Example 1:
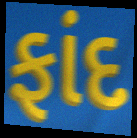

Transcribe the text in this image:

ફાંદ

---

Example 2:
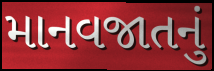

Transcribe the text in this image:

માનવજાતનું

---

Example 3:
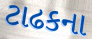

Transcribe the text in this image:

ટાઢકના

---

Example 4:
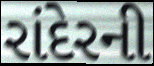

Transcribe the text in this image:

રાંદેરની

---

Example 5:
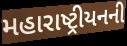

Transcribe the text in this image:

મહારાષ્ટ્રીયનની